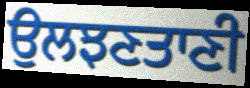
ਉਲਝਣਤਾਣੀ